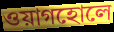
ওয়াগহোলে